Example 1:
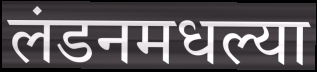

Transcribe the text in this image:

लंडनमधल्या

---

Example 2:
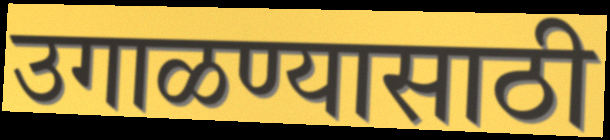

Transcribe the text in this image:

उगाळण्यासाठी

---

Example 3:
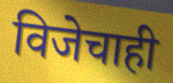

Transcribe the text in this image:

विजेचाही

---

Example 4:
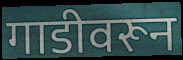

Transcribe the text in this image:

गाडीवरून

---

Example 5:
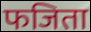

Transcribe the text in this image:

फजिता